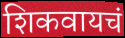
शिकवायचं